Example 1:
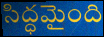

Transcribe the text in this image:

సిద్ధమైంది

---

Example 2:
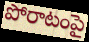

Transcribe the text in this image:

పోరాటంపై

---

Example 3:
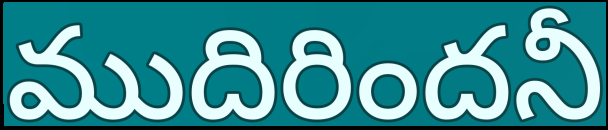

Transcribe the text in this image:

ముదిరిందనీ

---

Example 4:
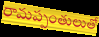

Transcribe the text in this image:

రామప్పంతులుతో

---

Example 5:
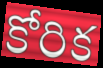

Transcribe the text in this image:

కోరిక